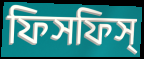
ফিসফিস্